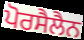
ਪੋਰਸੈਲੈਨ